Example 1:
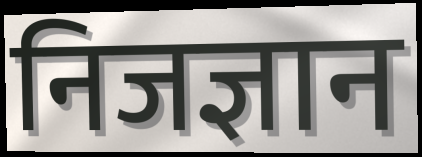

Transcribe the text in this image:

निजज्ञान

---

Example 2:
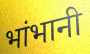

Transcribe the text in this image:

भांभानी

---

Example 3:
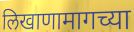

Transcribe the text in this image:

लिखाणामागच्या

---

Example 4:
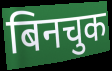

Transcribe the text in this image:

बिनचुक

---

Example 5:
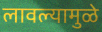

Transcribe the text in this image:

लावल्यामुळे